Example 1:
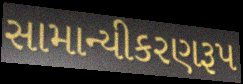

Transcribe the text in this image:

સામાન્યીકરણરૂપ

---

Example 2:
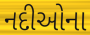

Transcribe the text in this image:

નદીઓના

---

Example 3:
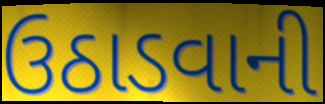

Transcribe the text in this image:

ઉઠાડવાની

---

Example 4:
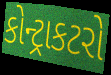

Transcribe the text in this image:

કોન્ટ્રાકટરો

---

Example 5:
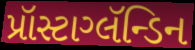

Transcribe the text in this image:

પ્રૉસ્ટાગ્લૅન્ડિન